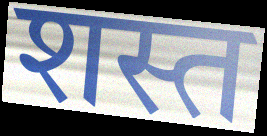
शस्त